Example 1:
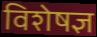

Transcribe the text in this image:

विशेषज्ञ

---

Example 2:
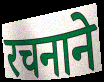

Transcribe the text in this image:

रचनाने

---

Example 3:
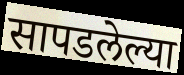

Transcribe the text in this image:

सापडलेल्‍या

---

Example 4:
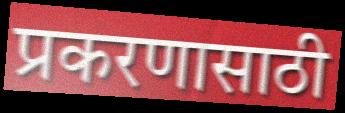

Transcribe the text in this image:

प्रकरणासाठी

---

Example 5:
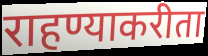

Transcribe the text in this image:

राहण्याकरीता